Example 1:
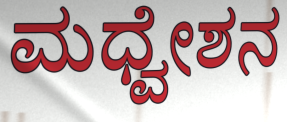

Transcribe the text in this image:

ಮಧ್ವೇಶನ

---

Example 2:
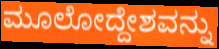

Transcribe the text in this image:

ಮೂಲೋದ್ದೇಶವನ್ನು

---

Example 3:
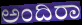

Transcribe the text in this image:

ಅಂದಿರಾ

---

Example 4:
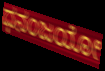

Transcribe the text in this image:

ಧನಂಜಯೋ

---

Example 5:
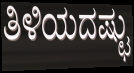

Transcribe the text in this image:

ತಿಳಿಯದಷ್ಟು